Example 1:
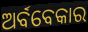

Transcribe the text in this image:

ଅର୍ବବେକାର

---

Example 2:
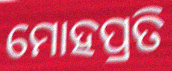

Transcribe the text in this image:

ମୋହପ୍ରତି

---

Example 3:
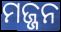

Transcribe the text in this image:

ମଜ୍ଜନ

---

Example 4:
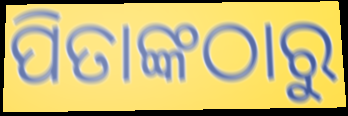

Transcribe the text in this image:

ପିତାଙ୍କଠାରୁ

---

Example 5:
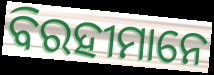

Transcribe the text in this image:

ବିରହୀମାନେ